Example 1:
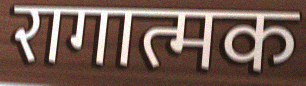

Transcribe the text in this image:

रागात्मक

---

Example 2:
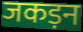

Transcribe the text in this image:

जकड़न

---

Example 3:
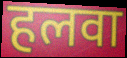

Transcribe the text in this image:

हलवा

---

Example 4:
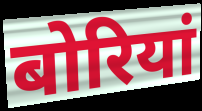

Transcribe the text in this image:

बोरियां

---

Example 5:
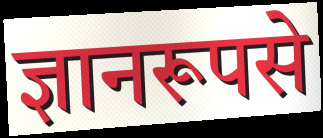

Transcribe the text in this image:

ज्ञानरूपसे